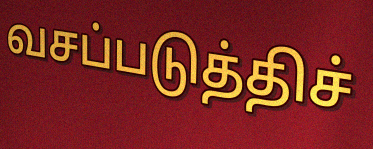
வசப்படுத்திச்